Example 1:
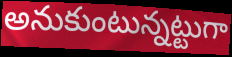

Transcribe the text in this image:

అనుకుంటున్నట్టుగా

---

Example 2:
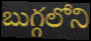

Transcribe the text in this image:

బుగ్గలోని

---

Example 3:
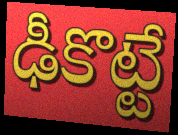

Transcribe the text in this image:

ఢీకొట్టే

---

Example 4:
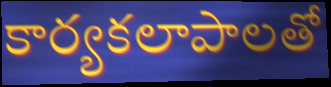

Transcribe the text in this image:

కార్యకలాపాలతో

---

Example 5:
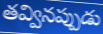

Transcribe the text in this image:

తవ్వినప్పుడు